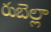
రుబెల్లా